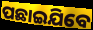
ପଛାଇଯିବେ